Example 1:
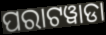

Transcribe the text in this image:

ପରାଟୱାଡା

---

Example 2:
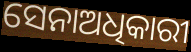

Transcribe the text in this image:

ସେନାଅଧିକାରୀ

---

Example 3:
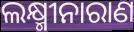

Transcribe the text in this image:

ଲକ୍ଷ୍ମୀନାରାଣ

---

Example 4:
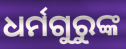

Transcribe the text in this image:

ଧର୍ମଗୁରୁଙ୍କ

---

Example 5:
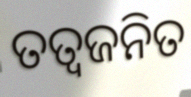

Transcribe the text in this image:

ତତ୍ଵଜନିତ